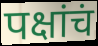
पक्षांचं